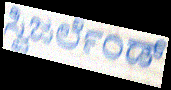
ಸ್ವಿಜರ್ಲೆಂಡ್